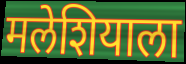
मलेशियाला